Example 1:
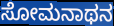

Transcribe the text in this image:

ಸೋಮನಾಥನ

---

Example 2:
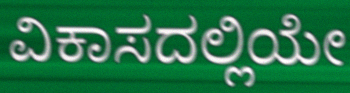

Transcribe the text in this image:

ವಿಕಾಸದಲ್ಲಿಯೇ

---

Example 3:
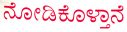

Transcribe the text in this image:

ನೋಡಿಕೊಳ್ತಾನೆ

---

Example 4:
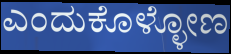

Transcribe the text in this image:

ಎಂದುಕೊಳ್ಳೋಣ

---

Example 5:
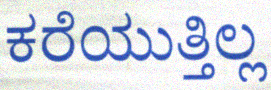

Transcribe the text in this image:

ಕರೆಯುತ್ತಿಲ್ಲ